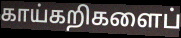
காய்கறிகளைப்